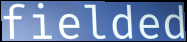
fielded